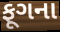
ફૂગના